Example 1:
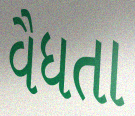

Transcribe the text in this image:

વૈધતા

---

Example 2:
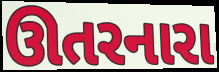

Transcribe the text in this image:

ઊતરનારા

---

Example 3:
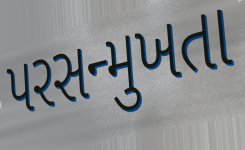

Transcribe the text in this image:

પરસન્મુખતા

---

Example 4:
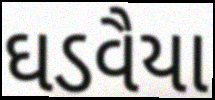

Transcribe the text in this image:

ઘડવૈયા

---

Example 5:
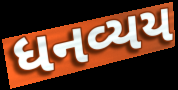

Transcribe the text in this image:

ધનવ્યય